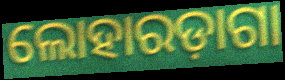
ଲୋହାରଡ଼ାଗା